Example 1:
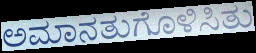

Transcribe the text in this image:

ಅಮಾನತುಗೊಳಿಸಿತು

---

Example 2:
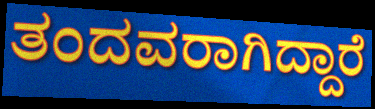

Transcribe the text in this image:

ತಂದವರಾಗಿದ್ದಾರೆ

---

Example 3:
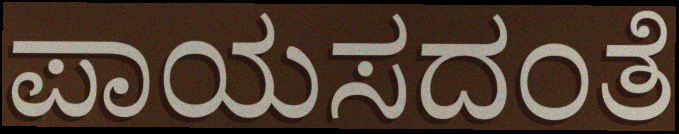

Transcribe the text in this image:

ಪಾಯಸದಂತೆ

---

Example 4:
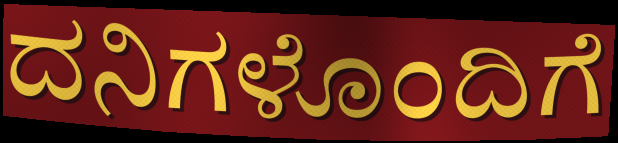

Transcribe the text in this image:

ದನಿಗಳೊಂದಿಗೆ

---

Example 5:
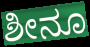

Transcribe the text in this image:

ಶೀನೂ